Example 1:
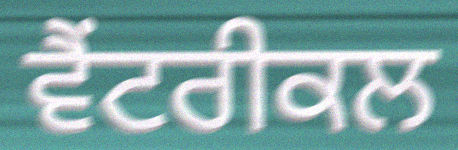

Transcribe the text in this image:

ਵੈਂਟਰੀਕਲ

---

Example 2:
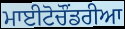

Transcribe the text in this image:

ਮਾਈਟੋਚੌਂਡਰੀਆ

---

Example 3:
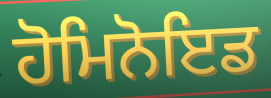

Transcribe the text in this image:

ਹੋਮਿਨੋਇਡ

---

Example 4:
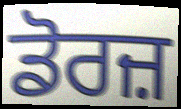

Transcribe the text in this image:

ਡੋਰਜ਼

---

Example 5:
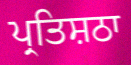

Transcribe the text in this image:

ਪ੍ਰਤਿਸ਼ਠਾ